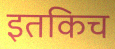
इतकिच